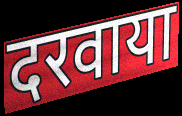
दरवाया